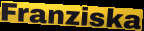
Franziska